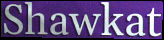
Shawkat